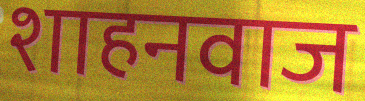
शाहनवाज